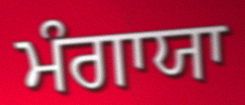
ਮੰਗਾਯਾ